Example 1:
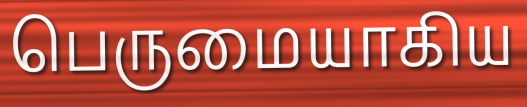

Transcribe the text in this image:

பெருமையாகிய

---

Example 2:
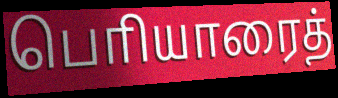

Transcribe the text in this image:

பெரியாரைத்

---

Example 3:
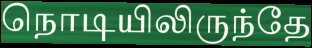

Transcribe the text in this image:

நொடியிலிருந்தே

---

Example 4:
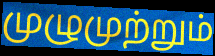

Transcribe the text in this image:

முழுமுற்றும்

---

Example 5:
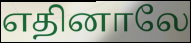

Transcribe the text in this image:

எதினாலே